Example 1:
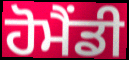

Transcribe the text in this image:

ਹੋਮੈਂਡੀ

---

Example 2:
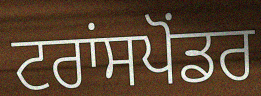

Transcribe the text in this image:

ਟਰਾਂਸਪੋਂਡਰ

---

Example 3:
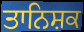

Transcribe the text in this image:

ਤਾਨਿਸ਼ਕ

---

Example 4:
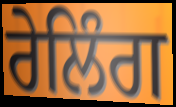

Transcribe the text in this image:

ਰੇਲਿੰਗ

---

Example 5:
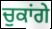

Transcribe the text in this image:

ਚੁਕਾਂਗੇ